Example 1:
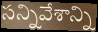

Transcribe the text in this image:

సన్నివేశాన్ని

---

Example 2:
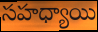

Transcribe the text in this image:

సహధ్యాయి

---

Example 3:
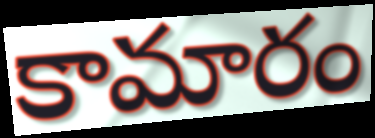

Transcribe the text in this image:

కామారం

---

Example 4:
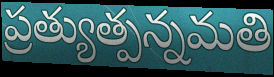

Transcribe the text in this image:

ప్రత్యుత్పన్నమతి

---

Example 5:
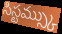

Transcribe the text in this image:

సిస్టమ్స్కు